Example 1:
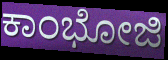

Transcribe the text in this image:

ಕಾಂಭೋಜಿ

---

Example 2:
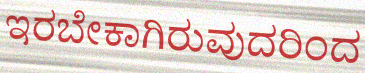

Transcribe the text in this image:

ಇರಬೇಕಾಗಿರುವುದರಿಂದ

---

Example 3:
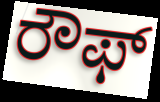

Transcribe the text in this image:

ರೌಫ್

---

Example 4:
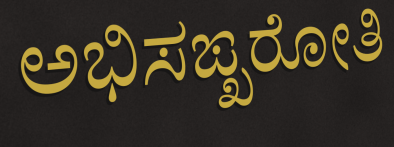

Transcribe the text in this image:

ಅಭಿಸಙ್ಖರೋತಿ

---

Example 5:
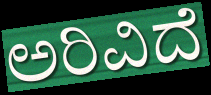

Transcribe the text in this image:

ಅರಿವಿದೆ